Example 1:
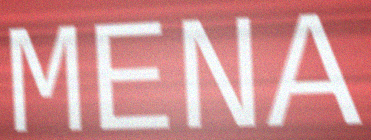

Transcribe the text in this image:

MENA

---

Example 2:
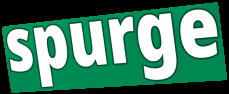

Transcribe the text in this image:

spurge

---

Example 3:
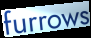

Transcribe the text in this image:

furrows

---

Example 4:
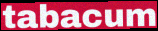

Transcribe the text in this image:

tabacum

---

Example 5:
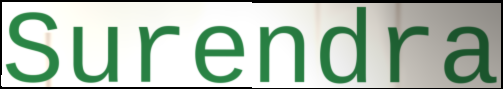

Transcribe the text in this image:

Surendra